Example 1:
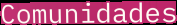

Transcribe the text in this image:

Comunidades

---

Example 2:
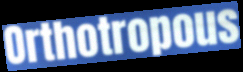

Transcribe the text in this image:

Orthotropous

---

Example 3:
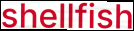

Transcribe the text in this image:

shellfish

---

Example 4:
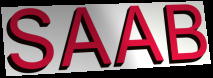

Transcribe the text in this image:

SAAB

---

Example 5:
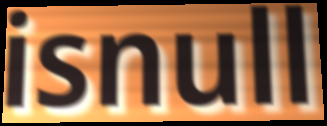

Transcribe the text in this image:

isnull